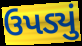
ઉપડ્યું